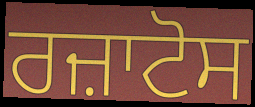
ਰਜ਼ਾਟੋਸ